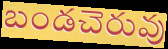
బండచెరువు